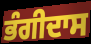
ਭੰਗੀਦਾਸ